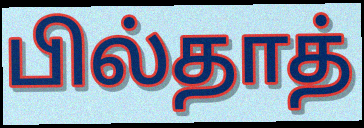
பில்தாத்